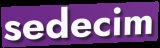
sedecim